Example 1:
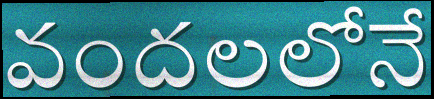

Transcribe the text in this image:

వందలలోనే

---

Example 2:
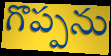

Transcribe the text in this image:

గొప్పను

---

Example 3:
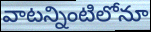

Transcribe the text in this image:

వాటన్నింటిలోనూ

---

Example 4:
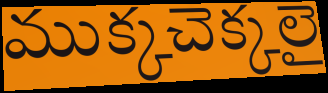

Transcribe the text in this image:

ముక్కచెక్కలై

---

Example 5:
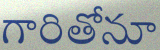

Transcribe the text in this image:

గారితోనూ